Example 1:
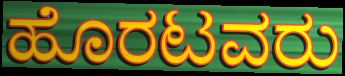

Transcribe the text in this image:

ಹೊರಟವರು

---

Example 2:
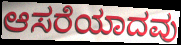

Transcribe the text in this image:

ಆಸರೆಯಾದವು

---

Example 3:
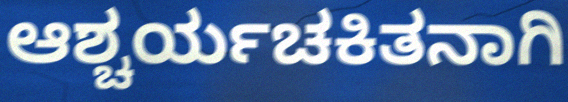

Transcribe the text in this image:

ಆಶ್ಚರ್ಯಚಕಿತನಾಗಿ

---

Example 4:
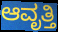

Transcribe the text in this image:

ಆವೃತ್ತಿ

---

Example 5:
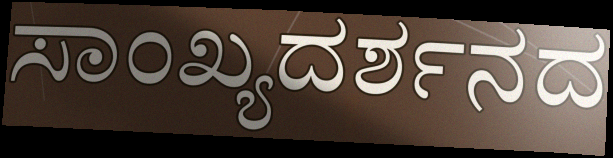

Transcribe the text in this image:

ಸಾಂಖ್ಯದರ್ಶನದ